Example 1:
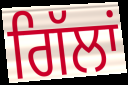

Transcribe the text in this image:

ਗਿੱਲਾਂ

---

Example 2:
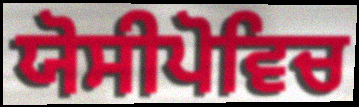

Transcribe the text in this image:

ਯੋਸੀਪੋਵਿਚ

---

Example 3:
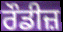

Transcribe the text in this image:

ਰੌਡੀਜ਼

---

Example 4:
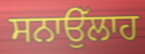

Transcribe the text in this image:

ਸਨਾਉੱਲਾਹ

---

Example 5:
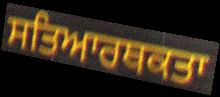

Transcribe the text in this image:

ਸਤਿਆਰਥਕਤਾ